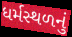
ધર્મસ્થળનું